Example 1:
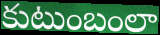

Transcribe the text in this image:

కుటుంబంలా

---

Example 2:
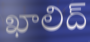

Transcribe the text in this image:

ఖాలిద్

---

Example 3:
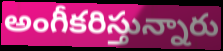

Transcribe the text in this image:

అంగీకరిస్తున్నారు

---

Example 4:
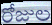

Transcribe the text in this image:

రోజుల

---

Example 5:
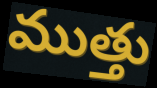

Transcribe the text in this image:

ముత్తు